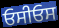
ਓਸੀਓਸ